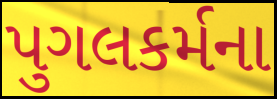
પુગલકર્મના